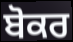
ਬੋਕਰ